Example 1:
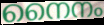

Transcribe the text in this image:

നൈനം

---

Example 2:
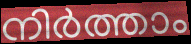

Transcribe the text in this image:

നിർത്താം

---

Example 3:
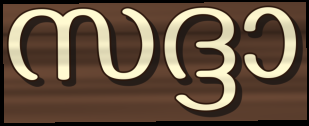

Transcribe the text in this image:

സദ്ദാ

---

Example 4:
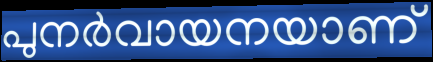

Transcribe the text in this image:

പുനർവായനയാണ്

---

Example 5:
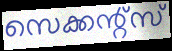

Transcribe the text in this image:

സെക്കന്റ്സ്